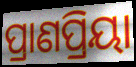
ପ୍ରାଣପ୍ରିୟା